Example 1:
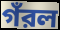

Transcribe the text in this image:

গঁরল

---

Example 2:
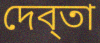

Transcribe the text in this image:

দেব্তা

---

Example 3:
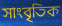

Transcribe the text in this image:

সাংবৃতিক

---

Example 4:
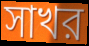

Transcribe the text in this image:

সাখর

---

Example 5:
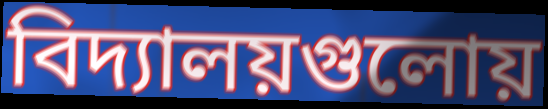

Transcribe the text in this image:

বিদ্যালয়গুলোয়